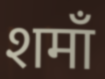
शमाँ